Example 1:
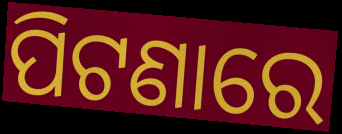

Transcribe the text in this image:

ପିଟଣାରେ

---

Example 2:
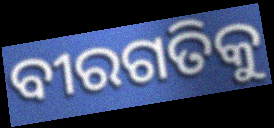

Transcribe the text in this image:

ବୀରଗତିକୁ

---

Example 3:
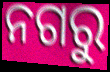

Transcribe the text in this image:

ନଗରୁ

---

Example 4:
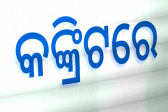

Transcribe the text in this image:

କଙ୍କ୍ରିଟରେ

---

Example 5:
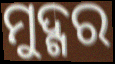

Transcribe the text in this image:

ମୁଦ୍ଗର